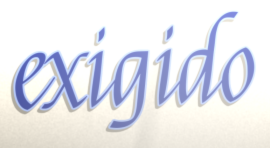
exigido